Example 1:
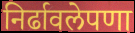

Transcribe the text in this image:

निर्ढावलेपणा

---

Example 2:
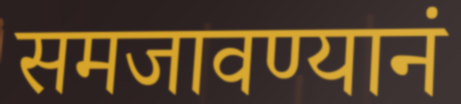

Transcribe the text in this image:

समजावण्यानं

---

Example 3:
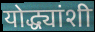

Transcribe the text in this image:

योद्ध्यांशी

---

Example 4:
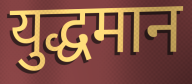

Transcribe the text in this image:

युद्धमान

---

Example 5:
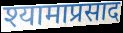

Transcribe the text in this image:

श्यामाप्रसाद